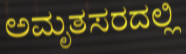
ಅಮೃತಸರದಲ್ಲಿ